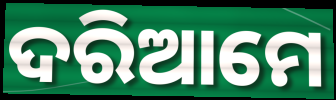
ଦରିଆମେ